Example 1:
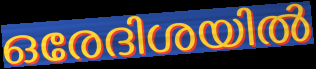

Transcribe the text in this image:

ഒരേദിശയിൽ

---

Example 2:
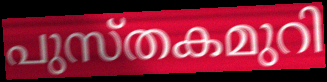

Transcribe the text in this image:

പുസ്തകമുറി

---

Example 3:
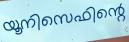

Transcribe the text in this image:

യൂനിസെഫിന്റെ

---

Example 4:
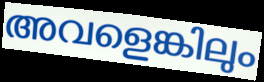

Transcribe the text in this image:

അവളെങ്കിലും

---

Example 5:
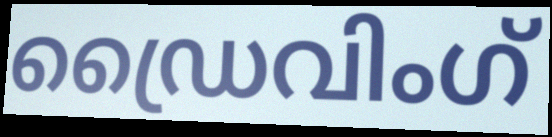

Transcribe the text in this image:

ഡ്രൈവിംഗ്